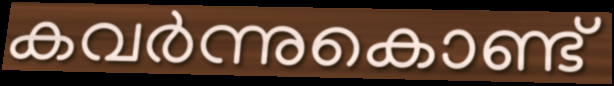
കവർന്നുകൊണ്ട്